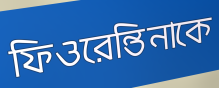
ফিওরেন্তিনাকে